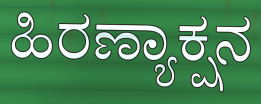
ಹಿರಣ್ಯಾಕ್ಷನ